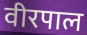
वीरपाल